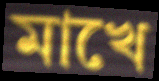
মাখে